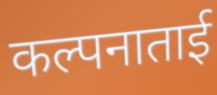
कल्पनाताई